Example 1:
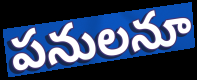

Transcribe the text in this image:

పనులనూ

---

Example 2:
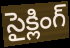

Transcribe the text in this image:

సైక్లింగ్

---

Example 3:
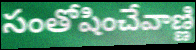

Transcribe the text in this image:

సంతోషించేవాణ్ణి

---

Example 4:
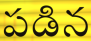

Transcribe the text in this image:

పడిన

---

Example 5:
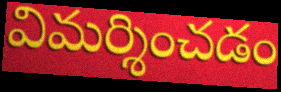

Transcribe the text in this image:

విమర్శించడం